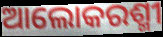
ଆଲୋକରଶ୍ମୀ